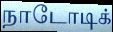
நாடோடிக்